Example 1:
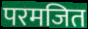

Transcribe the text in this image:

परमजित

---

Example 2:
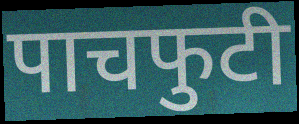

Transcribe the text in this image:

पाचफुटी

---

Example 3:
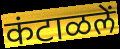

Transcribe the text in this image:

कंटाळलें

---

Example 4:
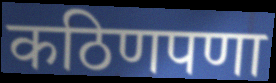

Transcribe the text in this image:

कठिणपणा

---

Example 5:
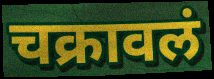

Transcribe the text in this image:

चक्रावलं